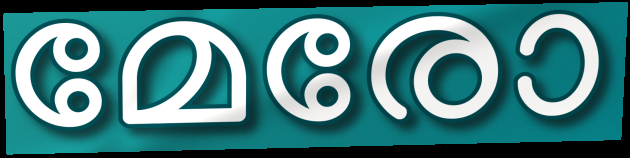
മേരോ